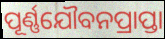
ପୂର୍ଣ୍ଣଯୌବନପ୍ରାପ୍ତା